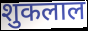
शुकलाल